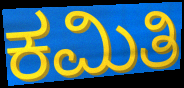
ಕಮಿತಿ